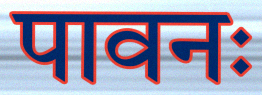
पावनः